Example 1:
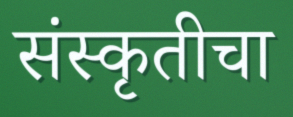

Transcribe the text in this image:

संस्कृतीचा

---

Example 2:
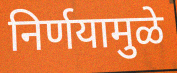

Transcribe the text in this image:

निर्णयामुळे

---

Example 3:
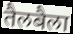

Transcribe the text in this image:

तैलबैला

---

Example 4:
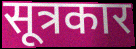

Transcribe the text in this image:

सूत्रकार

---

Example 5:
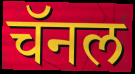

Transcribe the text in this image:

चॅनल